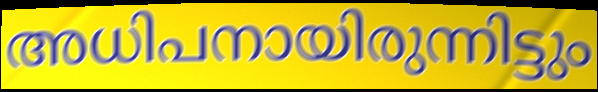
അധിപനായിരുന്നിട്ടും